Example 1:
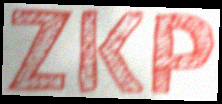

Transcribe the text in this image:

ZKP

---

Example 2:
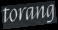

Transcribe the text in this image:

torang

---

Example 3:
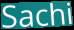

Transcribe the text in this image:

Sachi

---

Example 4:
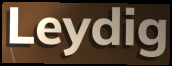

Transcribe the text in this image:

Leydig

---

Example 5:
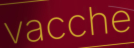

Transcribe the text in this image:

vacche